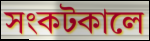
সংকটকালে